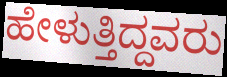
ಹೇಳುತ್ತಿದ್ದವರು